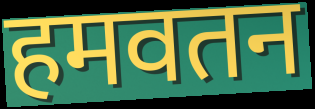
हमवतन